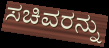
ಸಚಿವರನ್ನು